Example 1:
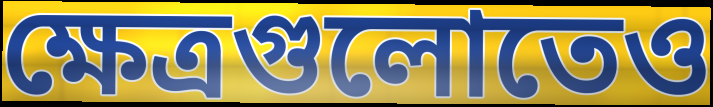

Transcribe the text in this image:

ক্ষেত্রগুলোতেও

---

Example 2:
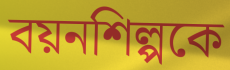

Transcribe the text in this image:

বয়নশিল্পকে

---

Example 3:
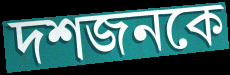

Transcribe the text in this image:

দশজনকে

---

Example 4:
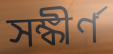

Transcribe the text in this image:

সঙ্কীর্ণ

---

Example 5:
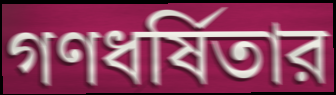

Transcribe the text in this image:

গণধর্ষিতার